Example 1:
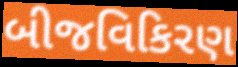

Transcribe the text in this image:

બીજવિકિરણ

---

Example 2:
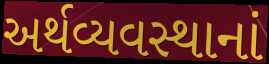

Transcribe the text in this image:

અર્થવ્યવસ્થાનાં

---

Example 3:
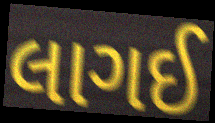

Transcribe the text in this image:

લાગઈ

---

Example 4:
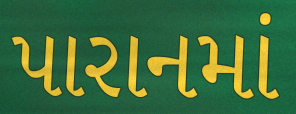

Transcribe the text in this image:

પારાનમાં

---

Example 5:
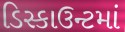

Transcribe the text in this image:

ડિસ્કાઉન્ટમાં